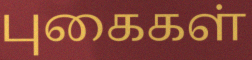
புகைகள்